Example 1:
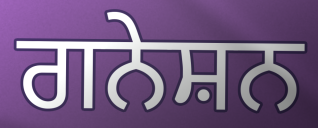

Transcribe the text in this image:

ਗਨੇਸ਼ਨ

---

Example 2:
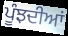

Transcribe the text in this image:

ਪੂੰਝਦੀਆਂ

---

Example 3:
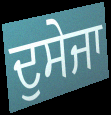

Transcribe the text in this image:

ਦੁਸੇਜਾ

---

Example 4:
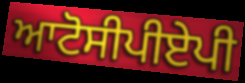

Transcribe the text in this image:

ਆਟੋਸੀਪੀਏਪੀ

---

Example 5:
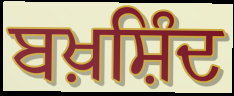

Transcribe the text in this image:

ਬਖ਼ਸ਼ਿੰਦ